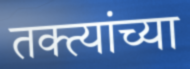
तक्त्यांच्या